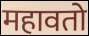
महावतो